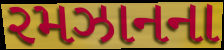
રમઝાનના